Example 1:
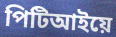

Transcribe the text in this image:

পিটিআইয়ে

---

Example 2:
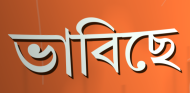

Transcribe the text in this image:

ভাবিছে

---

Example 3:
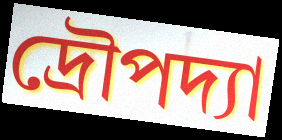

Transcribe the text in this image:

দ্রৌপদ্যা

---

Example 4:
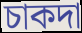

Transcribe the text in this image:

চাকদা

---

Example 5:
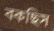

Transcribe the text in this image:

বকছিস